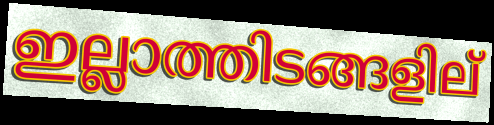
ഇല്ലാത്തിടങ്ങളില്